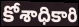
కోశాధికారి